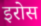
इरोस